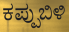
ಕಪ್ಪುಬಿಳಿ